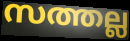
സത്തല്ല